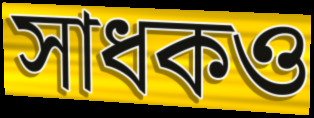
সাধকও